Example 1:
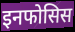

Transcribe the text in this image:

इनफोसिस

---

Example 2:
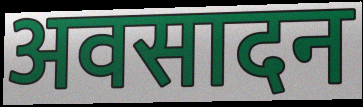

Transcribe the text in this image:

अवसादन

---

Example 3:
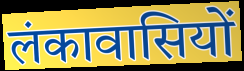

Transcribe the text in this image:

लंकावासियों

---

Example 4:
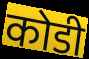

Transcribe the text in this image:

कोडी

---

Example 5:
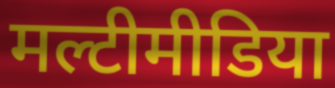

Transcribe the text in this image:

मल्टीमीडिया